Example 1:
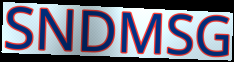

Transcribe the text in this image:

SNDMSG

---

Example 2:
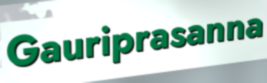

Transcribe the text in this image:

Gauriprasanna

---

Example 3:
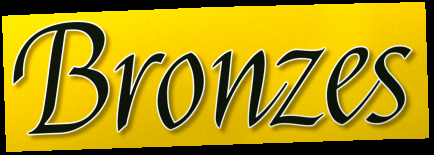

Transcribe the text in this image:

Bronzes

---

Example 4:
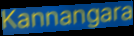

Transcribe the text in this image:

Kannangara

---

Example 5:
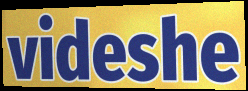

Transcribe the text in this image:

videshe